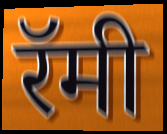
रॅमी